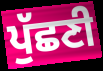
ਪੁੱਛਣੀ